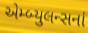
એમ્બ્યુલન્સનાં